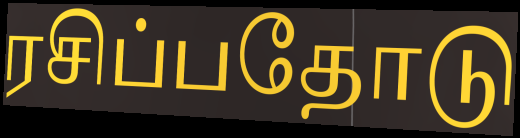
ரசிப்பதோடு